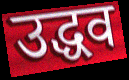
उद्धव